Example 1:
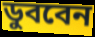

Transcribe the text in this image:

ডুববেন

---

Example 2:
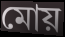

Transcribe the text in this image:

মোয়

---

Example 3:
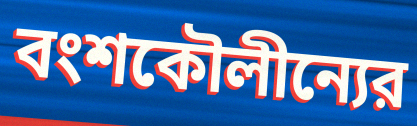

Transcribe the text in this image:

বংশকৌলীন্যের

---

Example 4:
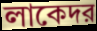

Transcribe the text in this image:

লাকেদর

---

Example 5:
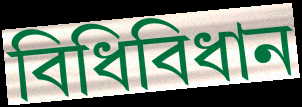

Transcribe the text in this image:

বিধিবিধান